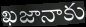
ఖజానాకు